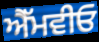
ਐੱਮਵੀਓ